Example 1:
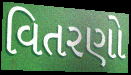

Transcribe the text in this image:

વિતરણો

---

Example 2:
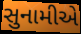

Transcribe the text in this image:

સુનામીએ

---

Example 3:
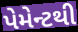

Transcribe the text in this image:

પેમેન્ટથી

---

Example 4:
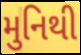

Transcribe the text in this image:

મુનિથી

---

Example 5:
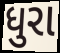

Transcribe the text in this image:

ધુરા